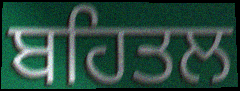
ਬਹਿਤਲ